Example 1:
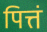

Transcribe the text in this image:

पित्तं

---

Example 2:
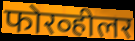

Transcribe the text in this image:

फोरव्हीलर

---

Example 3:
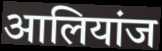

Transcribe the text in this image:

आलियांज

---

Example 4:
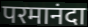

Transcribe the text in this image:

परमानंदा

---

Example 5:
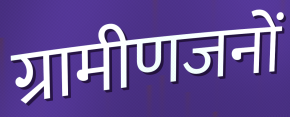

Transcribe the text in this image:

ग्रामीणजनों